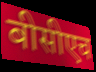
बीसीएच